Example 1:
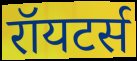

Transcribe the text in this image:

रॉयटर्स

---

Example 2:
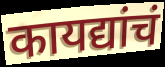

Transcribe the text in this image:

कायद्यांचं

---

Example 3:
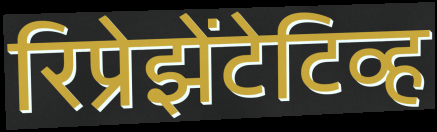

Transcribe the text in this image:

रिप्रेझेंटेटिव्ह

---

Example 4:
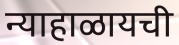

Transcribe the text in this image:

न्याहाळायची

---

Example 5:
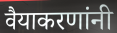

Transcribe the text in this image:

वैयाकरणांनी